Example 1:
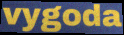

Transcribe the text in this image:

vygoda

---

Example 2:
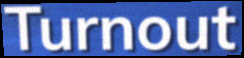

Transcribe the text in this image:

Turnout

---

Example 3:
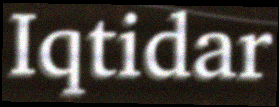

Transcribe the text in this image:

Iqtidar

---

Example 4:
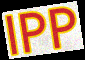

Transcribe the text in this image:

IPP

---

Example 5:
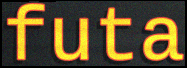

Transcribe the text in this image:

futa